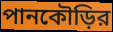
পানকৌড়ির